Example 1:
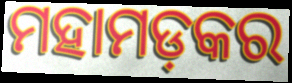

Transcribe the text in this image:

ମହାମଡ଼କର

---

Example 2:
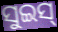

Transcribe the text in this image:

ସୁଇସ୍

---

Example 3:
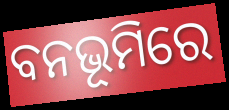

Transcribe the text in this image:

ବନଭୂମିରେ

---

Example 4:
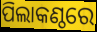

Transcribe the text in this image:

ପିଲାକଣ୍ଠରେ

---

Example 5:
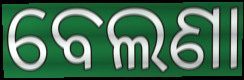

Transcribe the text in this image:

ବେଲଣା